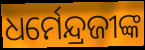
ଧର୍ମେନ୍ଦ୍ରଜୀଙ୍କ